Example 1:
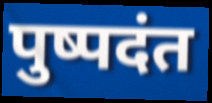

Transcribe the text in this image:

पुष्पदंत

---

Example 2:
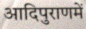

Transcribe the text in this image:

आदिपुराणमें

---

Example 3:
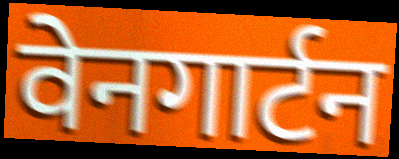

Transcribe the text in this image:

वेनगार्टन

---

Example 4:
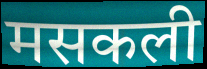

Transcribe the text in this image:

मसकली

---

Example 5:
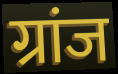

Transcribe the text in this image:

ग्रांज